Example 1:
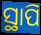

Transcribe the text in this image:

ସ୍ଥାପି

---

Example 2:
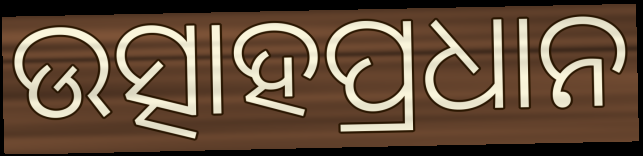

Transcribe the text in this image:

ଉତ୍ସାହପ୍ରଧାନ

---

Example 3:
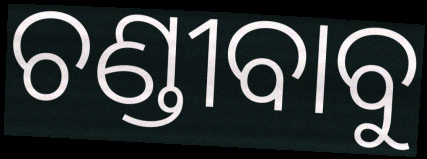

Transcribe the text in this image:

ଚଣ୍ଡୀବାବୁ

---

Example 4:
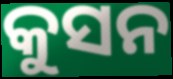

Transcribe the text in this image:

କୁସନ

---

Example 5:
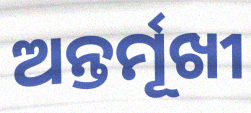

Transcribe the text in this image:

ଅନ୍ତର୍ମୂଖୀ